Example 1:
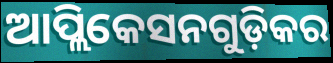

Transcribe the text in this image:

ଆପ୍ଲିକେସନଗୁଡ଼ିକର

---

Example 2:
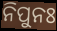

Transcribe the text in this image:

ନିପୁନଃ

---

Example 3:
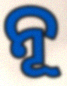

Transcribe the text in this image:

ନୂ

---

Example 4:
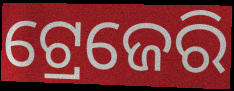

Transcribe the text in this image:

ଟ୍ରେଜେରି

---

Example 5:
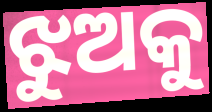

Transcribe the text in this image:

ଝୁଅକୁ